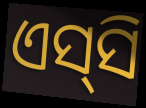
ଏସ୍‍ସି